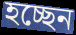
হচ্ছেন